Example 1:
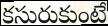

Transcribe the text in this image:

కసురుకుంటే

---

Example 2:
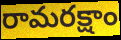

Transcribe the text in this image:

రామరక్షాం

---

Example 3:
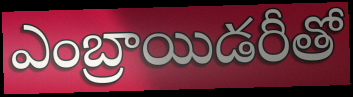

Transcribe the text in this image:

ఎంబ్రాయిడరీతో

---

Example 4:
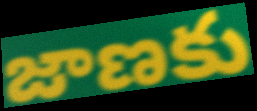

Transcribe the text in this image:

జాణకు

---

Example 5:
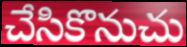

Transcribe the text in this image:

చేసికొనుచు